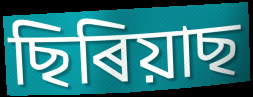
ছিৰিয়াছ